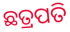
ଛତ୍ରପତି